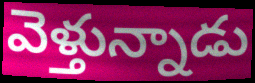
వెళ్తున్నాడు